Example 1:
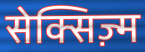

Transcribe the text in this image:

सेक्सिज़्म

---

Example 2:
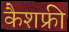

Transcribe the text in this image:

कैशफ्री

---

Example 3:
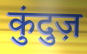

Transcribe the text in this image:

कुंदुज़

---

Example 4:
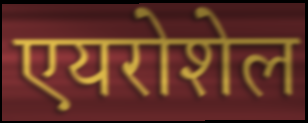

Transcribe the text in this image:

एयरोशेल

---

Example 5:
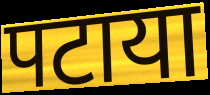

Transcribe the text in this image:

पटाया